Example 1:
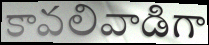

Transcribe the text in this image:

కావలివాడిగా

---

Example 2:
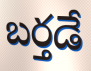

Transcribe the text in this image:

బర్తడే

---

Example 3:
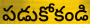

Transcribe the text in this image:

పడుకోకండి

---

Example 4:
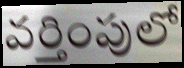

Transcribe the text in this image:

వర్తింపులో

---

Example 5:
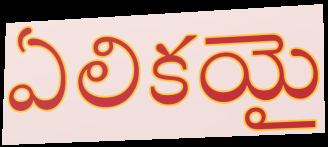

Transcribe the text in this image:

ఏలికయై